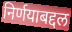
निर्णयाबद्दल